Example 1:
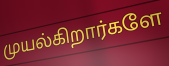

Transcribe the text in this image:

முயல்கிறார்களே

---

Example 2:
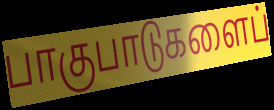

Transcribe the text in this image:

பாகுபாடுகளைப்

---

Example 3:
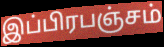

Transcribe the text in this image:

இப்பிரபஞ்சம்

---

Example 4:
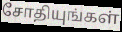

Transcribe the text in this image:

சோதியுங்கள்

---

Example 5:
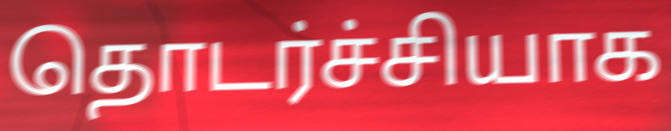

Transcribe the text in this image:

தொடர்ச்சியாக